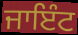
ਜਾਇੰਟ